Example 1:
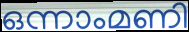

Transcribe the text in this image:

ഒന്നാംമണി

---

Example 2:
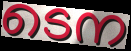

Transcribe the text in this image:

ടെന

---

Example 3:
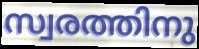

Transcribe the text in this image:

സ്വരത്തിനു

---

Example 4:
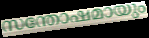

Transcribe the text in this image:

സന്തോഷമായും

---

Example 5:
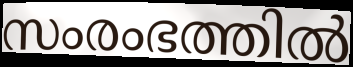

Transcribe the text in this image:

സംരംഭത്തിൽ